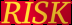
RISK